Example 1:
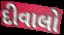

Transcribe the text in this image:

દીવાલો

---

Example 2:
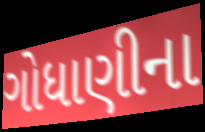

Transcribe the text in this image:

ગોધાણીના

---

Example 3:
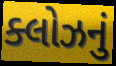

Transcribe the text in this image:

ક્લોઝનું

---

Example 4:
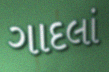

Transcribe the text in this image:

ગાદલાં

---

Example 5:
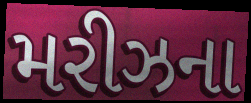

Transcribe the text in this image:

મરીઝના